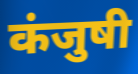
कंजुषी